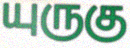
யுருகு